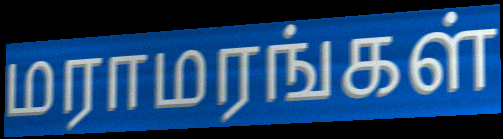
மராமரங்கள்